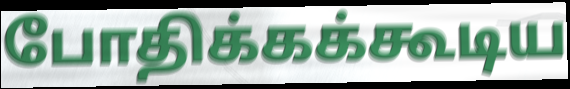
போதிக்கக்கூடிய